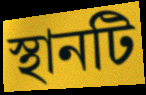
স্থানটি